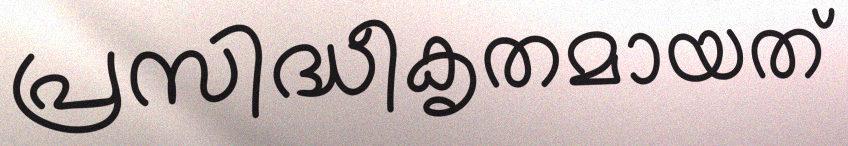
പ്രസിദ്ധീകൃതമായത്